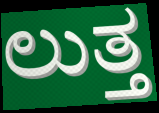
ಲುತ್ತ